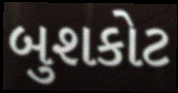
બુશકોટ